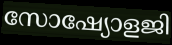
സോഷ്യോളജി